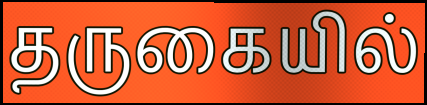
தருகையில்